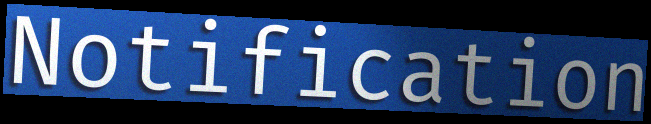
Notification